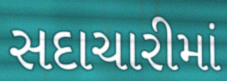
સદાચારીમાં